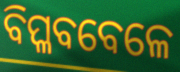
ବିପ୍ଳବବେଳେ